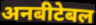
अनबीटेबल